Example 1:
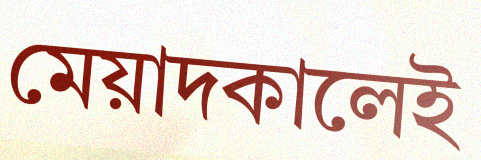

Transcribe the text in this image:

মেয়াদকালেই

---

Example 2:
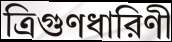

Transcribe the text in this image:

ত্রিগুণধারিণী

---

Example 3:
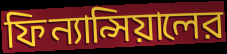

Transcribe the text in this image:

ফিন্যান্সিয়ালের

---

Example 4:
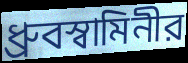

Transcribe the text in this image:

ধ্রুবস্বামিনীর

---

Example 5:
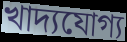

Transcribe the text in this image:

খাদ্যযোগ্য